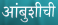
आंबुशीची